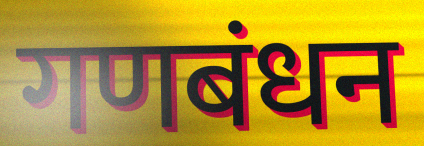
गणबंधन